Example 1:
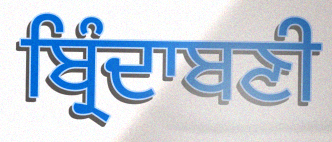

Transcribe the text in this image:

ਬ੍ਰਿੰਦਾਬਣੀ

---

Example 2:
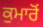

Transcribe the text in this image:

ਕੁਮਾਰੋਂ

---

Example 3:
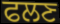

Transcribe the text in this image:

ਫਲਣ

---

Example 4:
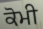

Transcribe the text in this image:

ਕੋਮੀ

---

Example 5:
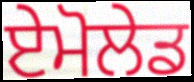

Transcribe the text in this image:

ਏਮੋਲੇਡ